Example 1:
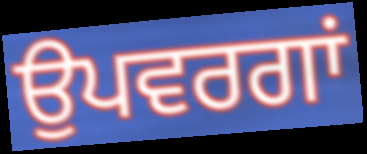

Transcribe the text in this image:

ਉਪਵਰਗਾਂ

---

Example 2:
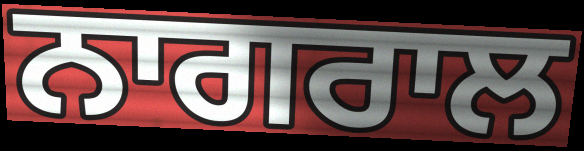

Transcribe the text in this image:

ਨਾਗਰਾਲ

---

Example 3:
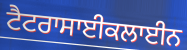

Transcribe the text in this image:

ਟੈਟਰਾਸਾਈਕਲਾਈਨ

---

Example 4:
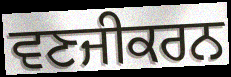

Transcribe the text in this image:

ਵਣਜੀਕਰਨ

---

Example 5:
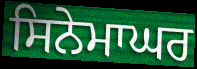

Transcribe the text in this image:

ਸਿਨੇਮਾਘਰ